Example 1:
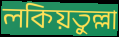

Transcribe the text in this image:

লকিয়তুল্লা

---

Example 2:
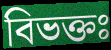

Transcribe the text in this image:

বিভক্তঃ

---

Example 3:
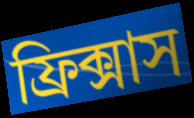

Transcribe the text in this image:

ফ্রিক্সাস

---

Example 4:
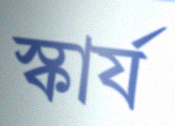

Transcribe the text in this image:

স্কার্য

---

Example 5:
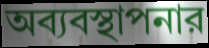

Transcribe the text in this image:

অব্যবস্থাপনার